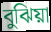
বুঝিয়া